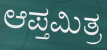
ಆಪ್ತಮಿತ್ರ